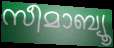
സീമാബ്യൂ